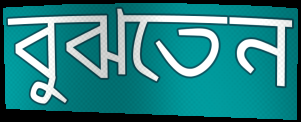
বুঝতেন